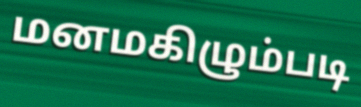
மனமகிழும்படி